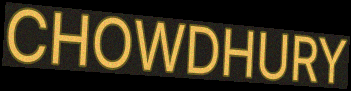
CHOWDHURY